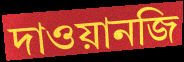
দাওয়ানজি